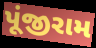
પૂંજીરામ